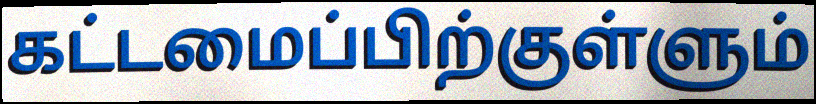
கட்டமைப்பிற்குள்ளும்